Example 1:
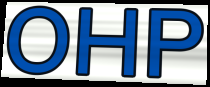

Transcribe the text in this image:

OHP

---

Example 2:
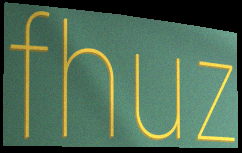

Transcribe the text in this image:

fhuz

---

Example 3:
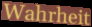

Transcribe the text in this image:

Wahrheit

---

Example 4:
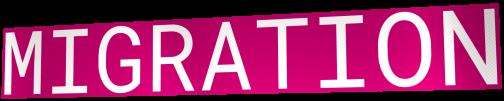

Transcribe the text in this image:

MIGRATION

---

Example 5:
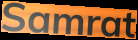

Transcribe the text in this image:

Samrat